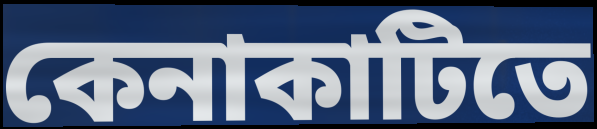
কেনাকাটিতে